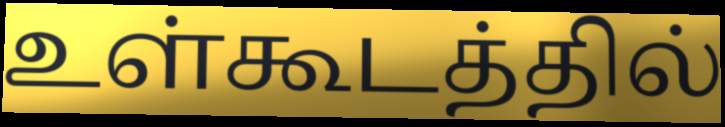
உள்கூடத்தில்